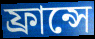
ফ্ৰান্সে